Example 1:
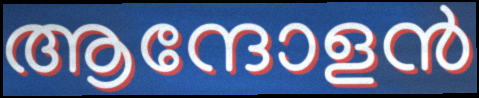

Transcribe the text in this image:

ആന്ദോളൻ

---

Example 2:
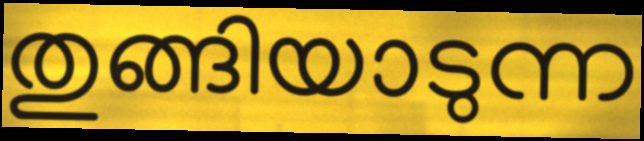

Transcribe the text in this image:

തുങ്ങിയാടുന്ന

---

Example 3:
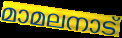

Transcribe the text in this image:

മാമലനാട്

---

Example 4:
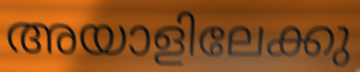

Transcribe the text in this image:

അയാളിലേക്കു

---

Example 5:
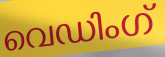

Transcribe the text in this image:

വെഡിംഗ്